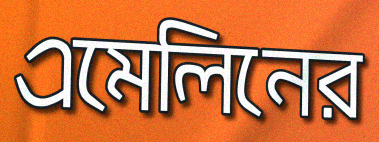
এমেলিনের